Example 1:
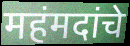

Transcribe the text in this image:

महंमदांचे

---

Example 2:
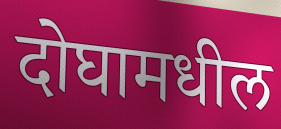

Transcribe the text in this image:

दोघामधील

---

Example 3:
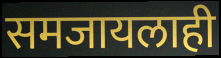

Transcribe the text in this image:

समजायलाही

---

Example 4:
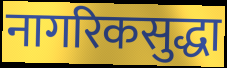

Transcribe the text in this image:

नागरिकसुद्धा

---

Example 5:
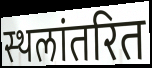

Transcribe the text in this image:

स्थलांतरित